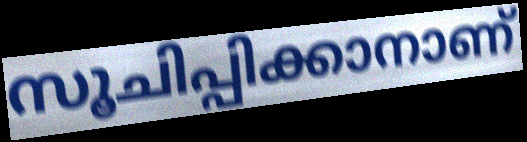
സൂചിപ്പിക്കാനാണ്